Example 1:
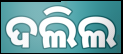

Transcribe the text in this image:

ଦଲିଲ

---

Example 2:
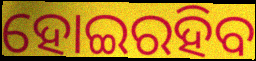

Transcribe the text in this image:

ହୋଇରହିବ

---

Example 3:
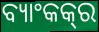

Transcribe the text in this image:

ବ୍ୟାଂକକ୍‍ର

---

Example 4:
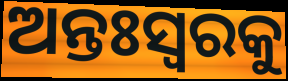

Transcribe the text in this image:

ଅନ୍ତଃସ୍ୱରକୁ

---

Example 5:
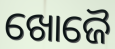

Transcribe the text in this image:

ଖୋଜୈ